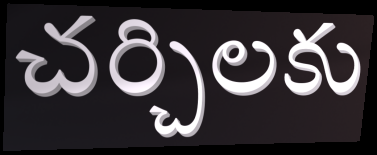
చర్చిలకు